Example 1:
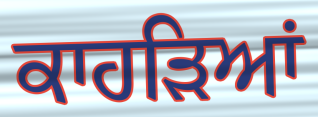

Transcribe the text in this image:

ਕਾਹੜਿਆਂ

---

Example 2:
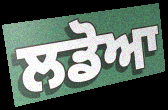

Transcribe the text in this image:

ਲਡੋਆ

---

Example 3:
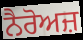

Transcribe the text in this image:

ਨੈਰੋਅਜ਼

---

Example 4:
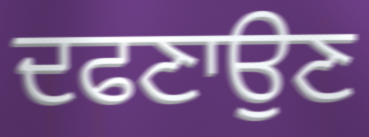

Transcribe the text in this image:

ਦਫਣਾਉਣ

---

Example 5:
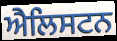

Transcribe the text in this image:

ਐਲਿਸਟਨ